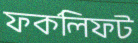
ফর্কলিফট